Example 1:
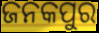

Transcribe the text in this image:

ଜନକପୁର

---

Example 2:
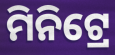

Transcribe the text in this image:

ମିନିଟ୍ରେ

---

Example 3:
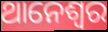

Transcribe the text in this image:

ଥାନେଶ୍ୱର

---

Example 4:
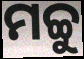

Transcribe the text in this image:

ମଚ୍ଚୁ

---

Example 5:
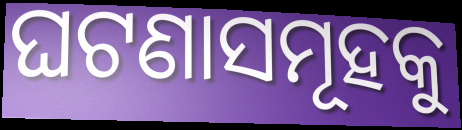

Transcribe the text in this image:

ଘଟଣାସମୂହକୁ